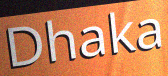
Dhaka